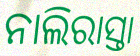
ନାଲିରାସ୍ତା